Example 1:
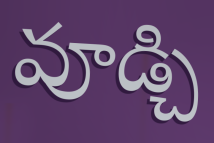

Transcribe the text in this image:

వూడ్చి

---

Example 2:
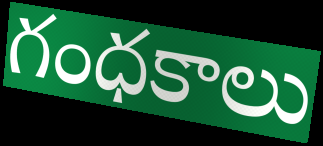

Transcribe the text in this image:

గంధకాలు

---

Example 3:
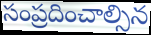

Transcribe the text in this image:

సంప్రదించాల్సిన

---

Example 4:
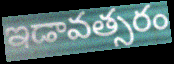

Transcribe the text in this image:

ఇడావత్సరం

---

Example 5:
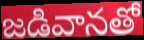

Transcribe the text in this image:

జడివానతో